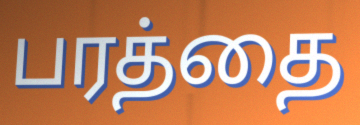
பரத்தை